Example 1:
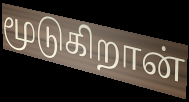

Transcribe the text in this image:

மூடுகிறான்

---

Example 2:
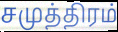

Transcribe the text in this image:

சமுத்திரம்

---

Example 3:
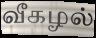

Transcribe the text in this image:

வீகழல்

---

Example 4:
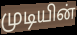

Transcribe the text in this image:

முடியின்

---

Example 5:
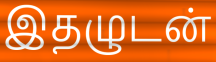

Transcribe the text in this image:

இதழுடன்